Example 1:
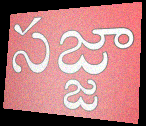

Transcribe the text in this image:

సజ్జా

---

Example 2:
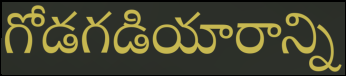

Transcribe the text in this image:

గోడగడియారాన్ని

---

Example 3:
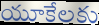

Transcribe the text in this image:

యూకేలకు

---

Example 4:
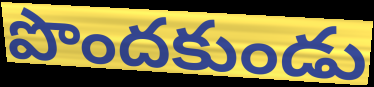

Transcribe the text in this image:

పొందకుండు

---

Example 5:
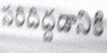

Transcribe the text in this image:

సరిదిద్దడానికి